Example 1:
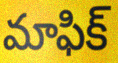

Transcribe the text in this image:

మాఫిక్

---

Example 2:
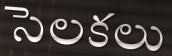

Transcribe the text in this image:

సెలకలు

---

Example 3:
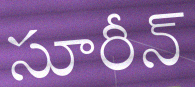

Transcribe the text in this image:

సూరీన్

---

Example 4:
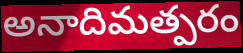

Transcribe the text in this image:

అనాదిమత్పరం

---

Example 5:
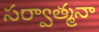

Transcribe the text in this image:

సర్వాత్మనా